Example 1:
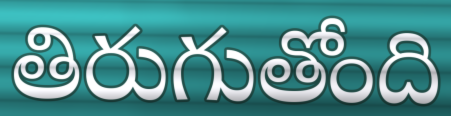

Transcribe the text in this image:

తిరుగుతోంది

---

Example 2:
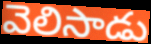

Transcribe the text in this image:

వెలిసాడు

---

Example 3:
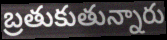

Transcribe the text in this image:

బ్రతుకుతున్నారు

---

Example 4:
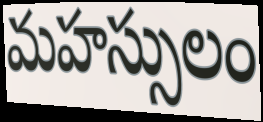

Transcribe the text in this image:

మహస్సులం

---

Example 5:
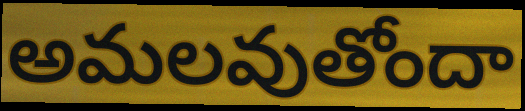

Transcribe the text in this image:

అమలవుతోందా